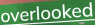
overlooked